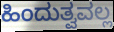
ಹಿಂದುತ್ವವಲ್ಲ